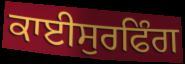
ਕਾਈਸੁਰਫਿੰਗ